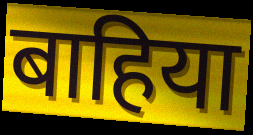
बाहिया